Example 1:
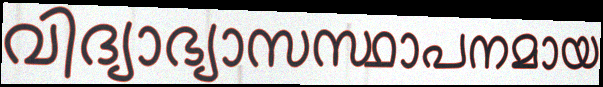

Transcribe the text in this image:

വിദ്യാഭ്യാസസ്ഥാപനമായ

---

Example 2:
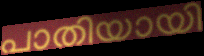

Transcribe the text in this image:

പാതിയായി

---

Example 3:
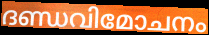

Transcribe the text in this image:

ദണ്ഡവിമോചനം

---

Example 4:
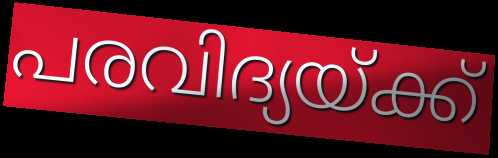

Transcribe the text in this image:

പരവിദ്യയ്ക്ക്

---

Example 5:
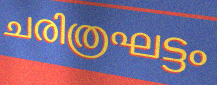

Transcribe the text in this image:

ചരിത്രഘട്ടം